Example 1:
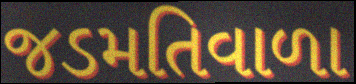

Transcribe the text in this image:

જડમતિવાળા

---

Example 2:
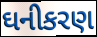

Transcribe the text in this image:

ઘનીકરણ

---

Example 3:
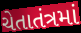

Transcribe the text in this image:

ચેતાતંત્રમાં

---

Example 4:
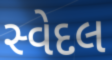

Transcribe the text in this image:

સ્વેદલ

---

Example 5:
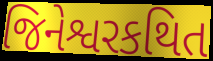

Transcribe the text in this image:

જિનેશ્વરકથિત